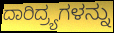
ದಾರಿದ್ರ್ಯಗಳನ್ನು